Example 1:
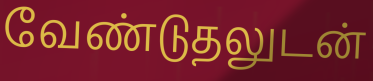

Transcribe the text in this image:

வேண்டுதலுடன்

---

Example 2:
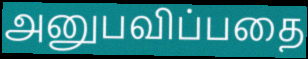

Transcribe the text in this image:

அனுபவிப்பதை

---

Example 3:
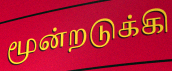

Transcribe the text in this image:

மூன்றடுக்கி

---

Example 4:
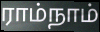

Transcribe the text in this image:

ராம்நாம்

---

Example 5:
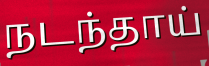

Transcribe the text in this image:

நடந்தாய்